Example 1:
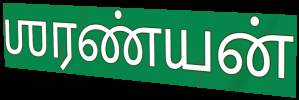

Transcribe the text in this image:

ஶரண்யன்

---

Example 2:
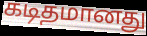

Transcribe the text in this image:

கடிதமானது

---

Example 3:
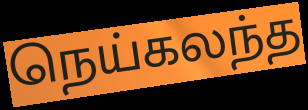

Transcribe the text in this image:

நெய்கலந்த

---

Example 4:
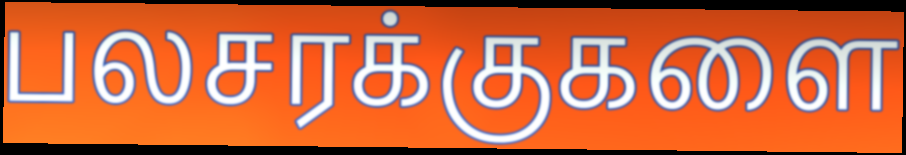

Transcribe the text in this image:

பலசரக்குகளை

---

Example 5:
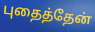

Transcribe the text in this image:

புதைத்தேன்